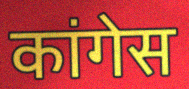
कांगेस